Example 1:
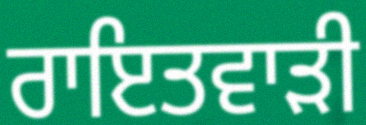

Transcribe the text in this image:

ਰਾਇਤਵਾੜੀ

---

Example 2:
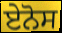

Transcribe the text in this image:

ਏਨੋਸ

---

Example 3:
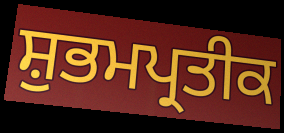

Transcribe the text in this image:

ਸ਼ੁਭਮਪ੍ਰਤੀਕ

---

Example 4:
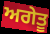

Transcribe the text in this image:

ਅਗੇਤੂ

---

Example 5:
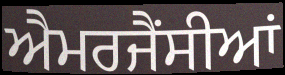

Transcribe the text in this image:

ਐਮਰਜੈਂਸੀਆਂ